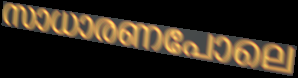
സാധാരണപോലെ